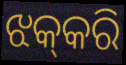
ଝକ୍‌କରି